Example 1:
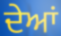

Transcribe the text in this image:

ਦੇਆਂ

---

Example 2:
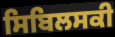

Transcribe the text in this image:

ਸਿਬਿਲਸਕੀ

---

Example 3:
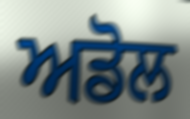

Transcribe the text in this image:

ਅਡੋਲ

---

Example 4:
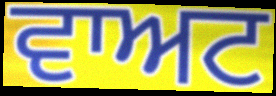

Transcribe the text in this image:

ਵਾਅਟ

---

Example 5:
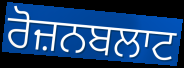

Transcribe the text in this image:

ਰੋਜ਼ਨਬਲਾਟ